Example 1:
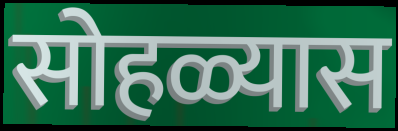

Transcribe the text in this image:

सोहळ्यास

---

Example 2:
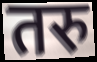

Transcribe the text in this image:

तरु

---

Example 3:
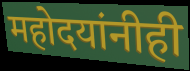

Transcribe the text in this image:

महोदयांनीही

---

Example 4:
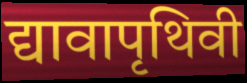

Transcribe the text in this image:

द्यावापृथिवी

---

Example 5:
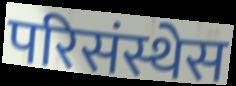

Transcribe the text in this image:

परिसंस्थेस